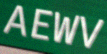
AEWV